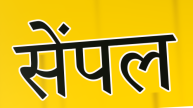
सेंपल